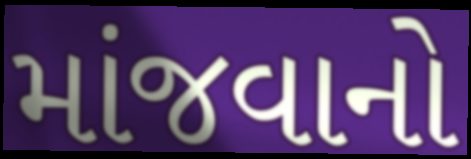
માંજવાનો